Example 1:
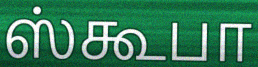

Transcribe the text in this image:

ஸ்கூபா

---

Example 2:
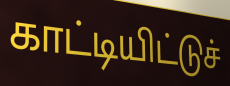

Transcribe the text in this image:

காட்டியிட்டுச்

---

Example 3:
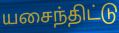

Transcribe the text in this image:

யசைந்திட்டு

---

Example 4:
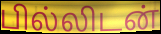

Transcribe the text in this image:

பில்லிடன்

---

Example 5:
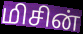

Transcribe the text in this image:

மிசின்